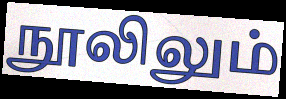
நூலிலும்